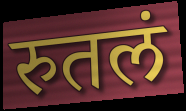
रुतलं